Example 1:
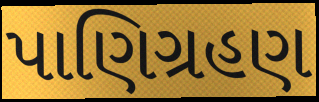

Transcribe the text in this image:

પાણિગ્રહણ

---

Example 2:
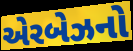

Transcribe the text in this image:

એરબેઝનો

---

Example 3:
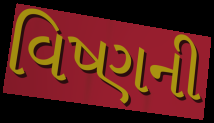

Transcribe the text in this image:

વિષ્ણની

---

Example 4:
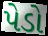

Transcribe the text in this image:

પેડો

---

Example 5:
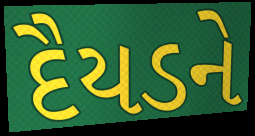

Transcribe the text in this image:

દૈયડને